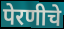
पेरणीचे